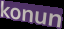
konun